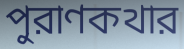
পুরাণকথার